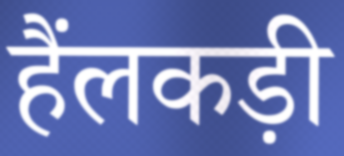
हैंलकड़ी